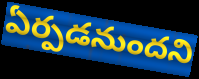
ఏర్పడనుందని